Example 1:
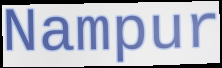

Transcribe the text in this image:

Nampur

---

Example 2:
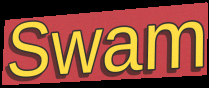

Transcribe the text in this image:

Swam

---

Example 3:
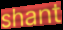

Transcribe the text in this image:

shant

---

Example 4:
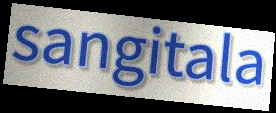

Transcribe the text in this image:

sangitala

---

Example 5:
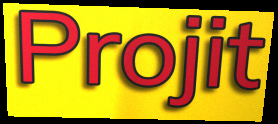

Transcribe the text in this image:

Projit